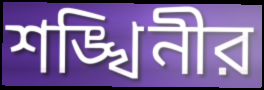
শঙ্খিনীর